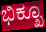
ಭಿಕ್ಖೂ